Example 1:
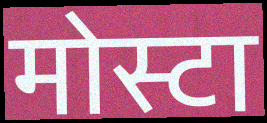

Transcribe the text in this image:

मोस्टा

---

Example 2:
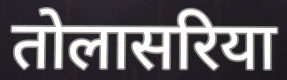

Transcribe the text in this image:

तोलासरिया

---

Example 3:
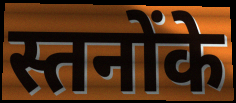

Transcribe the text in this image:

स्तनोंके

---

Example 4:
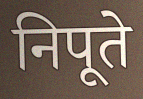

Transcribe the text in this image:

निपूते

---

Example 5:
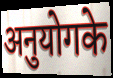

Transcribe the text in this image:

अनुयोगके